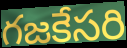
గజకేసరి